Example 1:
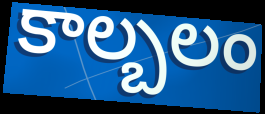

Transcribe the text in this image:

కాల్బలం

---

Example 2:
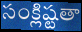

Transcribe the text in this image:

సంక్లిష్టతా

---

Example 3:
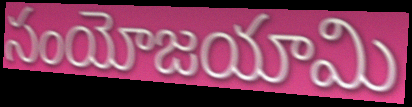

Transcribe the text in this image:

సంయోజయామి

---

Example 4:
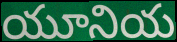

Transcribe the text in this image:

యూనియ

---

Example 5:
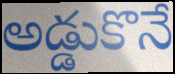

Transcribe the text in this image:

అడ్డుకొనే